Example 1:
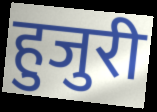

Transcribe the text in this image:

हुजुरी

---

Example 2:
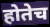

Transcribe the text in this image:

होतेच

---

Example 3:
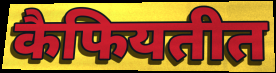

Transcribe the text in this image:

कैफियतीत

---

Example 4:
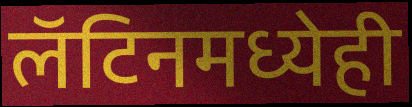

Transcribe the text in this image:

लॅटिनमध्येही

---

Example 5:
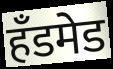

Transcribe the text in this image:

हॅंडमेड